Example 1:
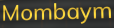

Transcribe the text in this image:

Mombaym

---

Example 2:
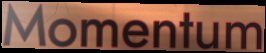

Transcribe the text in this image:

Momentum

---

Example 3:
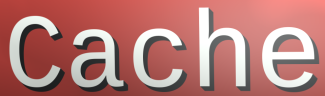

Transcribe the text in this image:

Cache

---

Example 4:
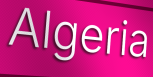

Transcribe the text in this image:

Algeria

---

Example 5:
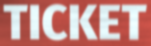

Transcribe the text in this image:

TICKET